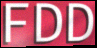
FDD